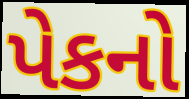
પેકનો